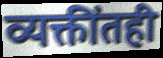
व्यक्तींतही